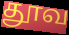
தூவ